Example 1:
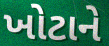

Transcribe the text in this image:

ખોટાને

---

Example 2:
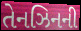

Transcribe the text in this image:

તેનઝિનની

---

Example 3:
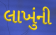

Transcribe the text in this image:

લાખુંની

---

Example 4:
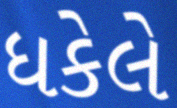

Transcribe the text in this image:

ધકેલે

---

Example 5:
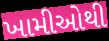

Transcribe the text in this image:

ખામીઓથી